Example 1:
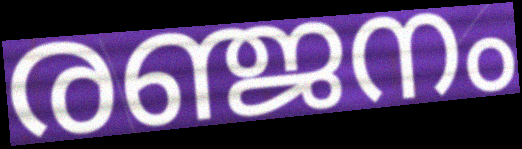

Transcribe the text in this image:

രഞ്ജനം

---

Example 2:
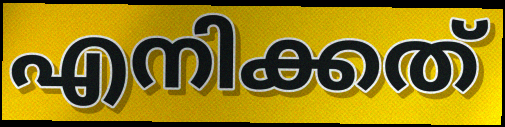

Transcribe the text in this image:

എനിക്കത്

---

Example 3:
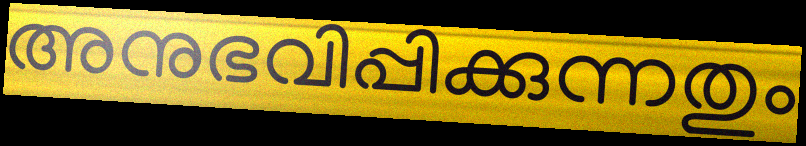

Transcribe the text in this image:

അനുഭവിപ്പിക്കുന്നതും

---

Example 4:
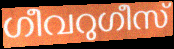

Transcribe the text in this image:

ഗീവറുഗീസ്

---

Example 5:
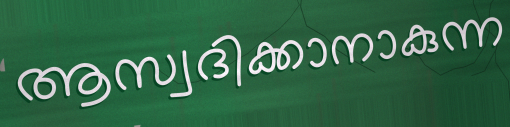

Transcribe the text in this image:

ആസ്വദിക്കാനാകുന്ന